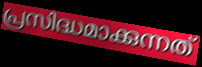
പ്രസിദ്ധമാക്കുന്നത്